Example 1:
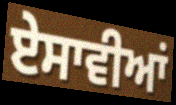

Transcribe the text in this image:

ਏਸਾਵੀਆਂ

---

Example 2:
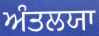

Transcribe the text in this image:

ਅੰਤਲਯਾ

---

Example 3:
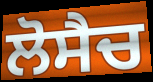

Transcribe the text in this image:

ਲੋਸੈਚ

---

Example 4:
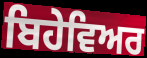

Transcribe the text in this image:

ਬਿਹੇਵਿਅਰ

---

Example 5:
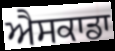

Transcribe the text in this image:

ਐਸਕਾਡਾ